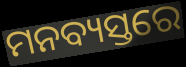
ମନବ୍ୟସ୍ତରେ